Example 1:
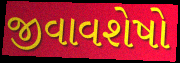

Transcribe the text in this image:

જીવાવશેષો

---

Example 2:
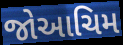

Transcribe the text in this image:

જોઆચિમ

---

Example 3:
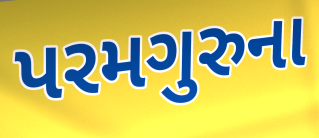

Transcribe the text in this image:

પરમગુરુના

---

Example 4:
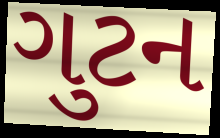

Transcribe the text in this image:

ગુટન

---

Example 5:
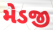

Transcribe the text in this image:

મેડજી